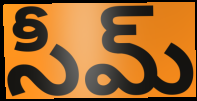
సీమ్